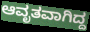
ಆವೃತವಾಗಿದ್ದ